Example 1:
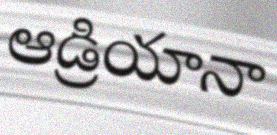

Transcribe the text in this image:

ఆడ్రియానా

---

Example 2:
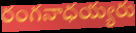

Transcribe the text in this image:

రంగనాధయ్యరు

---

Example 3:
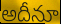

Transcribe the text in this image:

అదీనూ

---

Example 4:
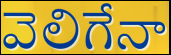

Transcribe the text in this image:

వెలిగేనా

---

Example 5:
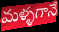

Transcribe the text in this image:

మళ్ళగానే